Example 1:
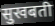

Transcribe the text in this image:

सुखबती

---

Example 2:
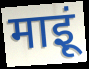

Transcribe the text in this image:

माइूं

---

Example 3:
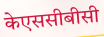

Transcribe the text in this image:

केएससीबीसी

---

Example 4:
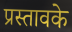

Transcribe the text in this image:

प्रस्तावके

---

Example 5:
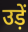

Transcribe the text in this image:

उड़ें